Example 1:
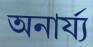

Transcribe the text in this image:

অনাৰ্য্য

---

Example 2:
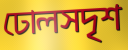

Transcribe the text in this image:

ঢোলসদৃশ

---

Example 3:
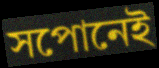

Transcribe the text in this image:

সপোনেই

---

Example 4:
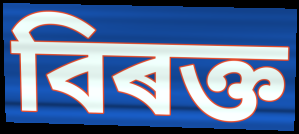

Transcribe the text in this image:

বিৰক্ত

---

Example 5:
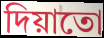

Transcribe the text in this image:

দিয়াতো